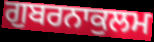
ਗੁਬਰਨਾਕੁਲਮ